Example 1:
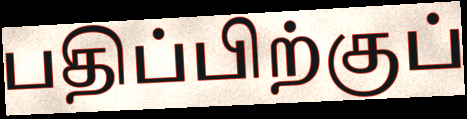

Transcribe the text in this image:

பதிப்பிற்குப்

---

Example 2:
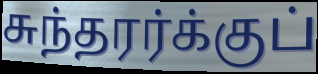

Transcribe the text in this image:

சுந்தரர்க்குப்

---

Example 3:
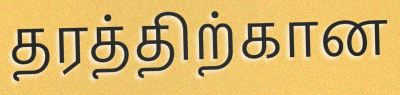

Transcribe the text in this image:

தரத்திற்கான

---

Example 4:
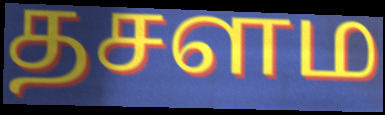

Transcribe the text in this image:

தசளம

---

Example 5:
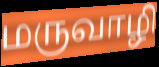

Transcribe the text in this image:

மருவாழி